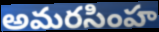
అమరసింహ